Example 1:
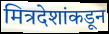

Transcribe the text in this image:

मित्रदेशांकडून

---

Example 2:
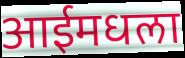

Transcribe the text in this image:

आईमधला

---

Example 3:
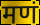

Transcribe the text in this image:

मणं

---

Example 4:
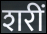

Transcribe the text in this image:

शरीं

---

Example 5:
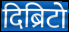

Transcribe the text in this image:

दिब्रिटो